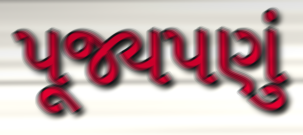
પૂજ્યપણું